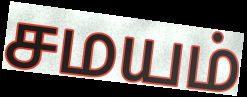
சமயம்